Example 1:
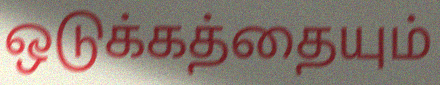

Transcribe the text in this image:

ஒடுக்கத்தையும்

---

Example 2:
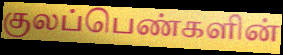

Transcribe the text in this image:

குலப்பெண்களின்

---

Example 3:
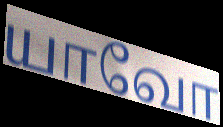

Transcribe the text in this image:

யாவோ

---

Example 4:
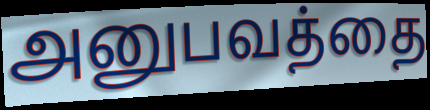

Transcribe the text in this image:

அனுபவத்தை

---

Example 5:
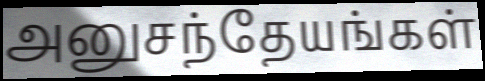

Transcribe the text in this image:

அனுசந்தேயங்கள்